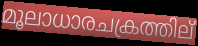
മൂലാധാരചക്രത്തില്